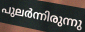
പുലർന്നിരുന്നു